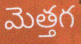
మెత్తగ